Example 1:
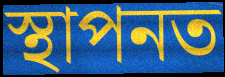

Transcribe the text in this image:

স্থাপনত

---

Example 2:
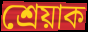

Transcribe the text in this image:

শ্ৰেয়াক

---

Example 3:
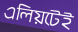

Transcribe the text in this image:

এলিয়টেই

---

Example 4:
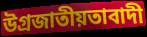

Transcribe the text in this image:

উগ্ৰজাতীয়তাবাদী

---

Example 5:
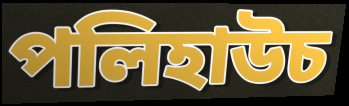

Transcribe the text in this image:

পলিহাউচ